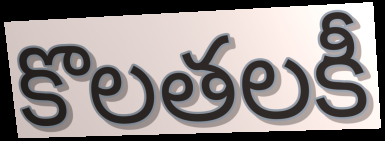
కొలతలకీ